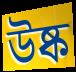
উষ্ক